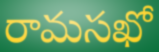
రామసఖో